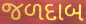
જળદાબ